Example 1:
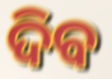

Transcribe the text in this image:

ଦିବ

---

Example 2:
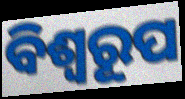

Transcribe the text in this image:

ବିଶ୍ବରୂପ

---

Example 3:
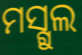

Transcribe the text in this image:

ମସ୍ଗୁଲ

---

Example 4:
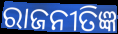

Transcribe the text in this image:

ରାଜନୀତିଜ୍ଞ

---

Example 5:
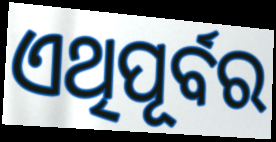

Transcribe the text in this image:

ଏଥିପୂର୍ବର